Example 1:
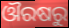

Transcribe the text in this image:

ଔରଷରୁ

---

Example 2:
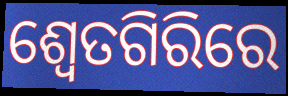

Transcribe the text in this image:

ଶ୍ୱେତଗିରିରେ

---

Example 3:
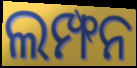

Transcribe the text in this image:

ଲମ୍ଫନ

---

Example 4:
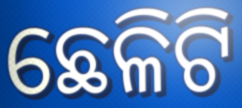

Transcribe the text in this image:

ଛେଳିଟି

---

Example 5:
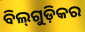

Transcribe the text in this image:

ବିଲ୍‌ଗୁଡ଼ିକର